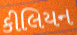
કીલિયન